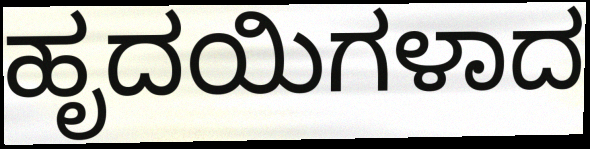
ಹೃದಯಿಗಳಾದ